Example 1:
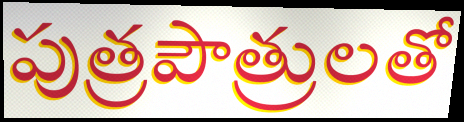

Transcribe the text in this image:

పుత్రపౌత్రులతో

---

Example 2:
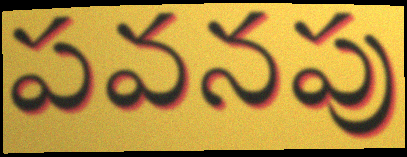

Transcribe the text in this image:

పవనపు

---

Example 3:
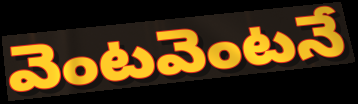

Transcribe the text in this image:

వెంటవెంటనే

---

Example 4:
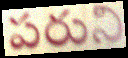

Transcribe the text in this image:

పరుని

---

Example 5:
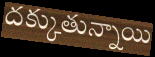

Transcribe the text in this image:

దక్కుతున్నాయి